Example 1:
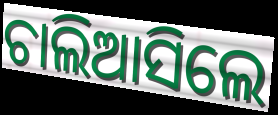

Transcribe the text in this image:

ଚାଲିଆସିଲେ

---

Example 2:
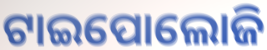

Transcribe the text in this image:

ଟାଇପୋଲୋଜି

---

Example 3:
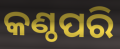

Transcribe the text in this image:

କଣ୍ଠପରି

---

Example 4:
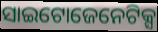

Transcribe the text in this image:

ସାଇଟୋଜେନେଟିକ୍ସ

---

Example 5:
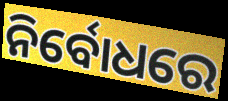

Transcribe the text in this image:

ନିର୍ବୋଧରେ